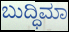
ಬುದ್ಧಿಮಾ